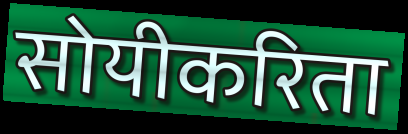
सोयीकरिता